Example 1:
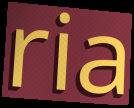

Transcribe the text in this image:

ria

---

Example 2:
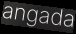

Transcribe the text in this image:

angada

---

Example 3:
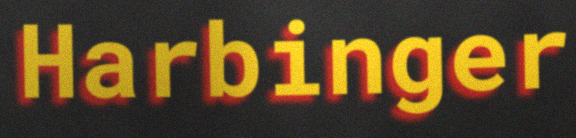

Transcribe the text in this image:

Harbinger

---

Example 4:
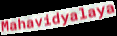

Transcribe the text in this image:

Mahavidyalaya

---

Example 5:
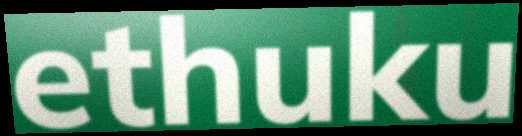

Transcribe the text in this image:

ethuku